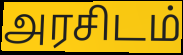
அரசிடம்